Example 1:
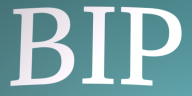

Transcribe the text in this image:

BIP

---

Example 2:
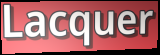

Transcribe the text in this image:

Lacquer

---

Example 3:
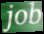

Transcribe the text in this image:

job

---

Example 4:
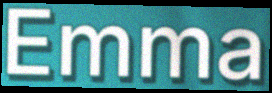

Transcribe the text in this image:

Emma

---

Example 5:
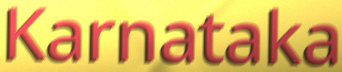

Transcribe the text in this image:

Karnataka